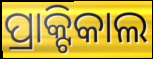
ପ୍ରାକ୍ଟିକାଲ